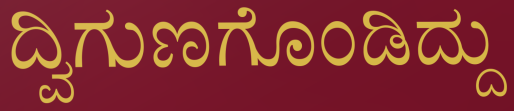
ದ್ವಿಗುಣಗೊಂಡಿದ್ದು